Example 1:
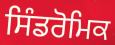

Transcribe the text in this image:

ਸਿੰਡਰੋਮਿਕ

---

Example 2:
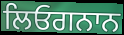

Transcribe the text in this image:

ਲਿਓਗਨਾਨ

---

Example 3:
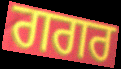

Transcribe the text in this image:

ਗਗਰ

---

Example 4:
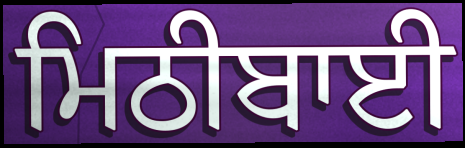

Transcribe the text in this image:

ਮਿਠੀਬਾਈ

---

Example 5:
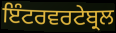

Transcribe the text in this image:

ਇੰਟਰਵਰਟੇਬ੍ਰਲ